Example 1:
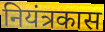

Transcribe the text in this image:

नियंत्रकास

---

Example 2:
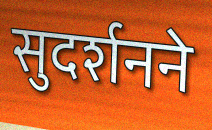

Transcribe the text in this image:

सुदर्शनने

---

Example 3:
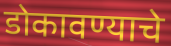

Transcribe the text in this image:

डोकावण्याचे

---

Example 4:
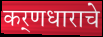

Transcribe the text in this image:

कर्णधाराचे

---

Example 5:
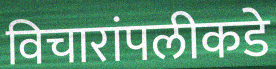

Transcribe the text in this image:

विचारांपलीकडे